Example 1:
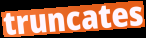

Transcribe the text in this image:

truncates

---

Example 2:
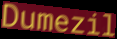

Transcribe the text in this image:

Dumezil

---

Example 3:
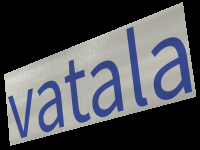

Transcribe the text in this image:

vatala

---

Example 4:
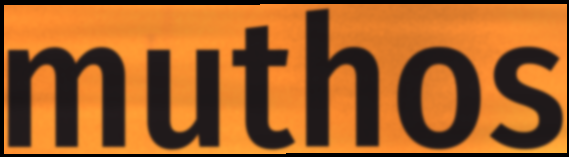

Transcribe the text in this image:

muthos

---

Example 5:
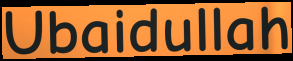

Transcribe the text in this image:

Ubaidullah